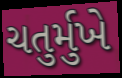
ચતુર્મુખે